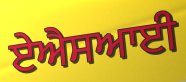
ਏਐਸਆਈ